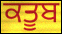
ਕਤੂਬ